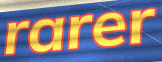
rarer